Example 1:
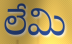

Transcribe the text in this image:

లేమి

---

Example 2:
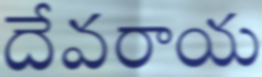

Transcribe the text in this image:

దేవరాయ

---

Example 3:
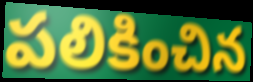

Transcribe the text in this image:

పలికించిన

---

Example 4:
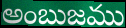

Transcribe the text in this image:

అంబుజము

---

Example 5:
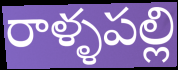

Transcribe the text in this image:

రాళ్ళపల్లి